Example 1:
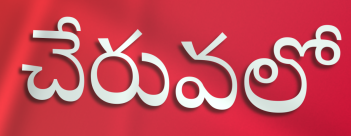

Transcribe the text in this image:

చేరువలో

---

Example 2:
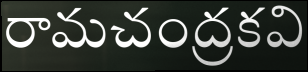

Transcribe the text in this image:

రామచంద్రకవి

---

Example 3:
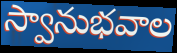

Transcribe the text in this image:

స్వానుభవాల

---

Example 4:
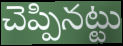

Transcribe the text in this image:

చెప్పినట్టు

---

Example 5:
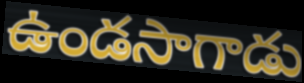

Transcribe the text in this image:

ఉండసాగాడు